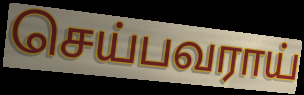
செய்பவராய்